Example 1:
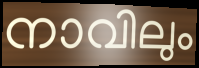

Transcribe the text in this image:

നാവിലും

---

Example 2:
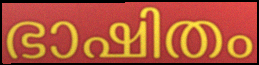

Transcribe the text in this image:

ഭാഷിതം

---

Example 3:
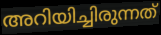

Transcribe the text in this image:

അറിയിച്ചിരുന്നത്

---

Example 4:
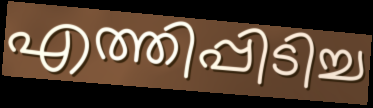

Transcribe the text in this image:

എത്തിപ്പിടിച്ച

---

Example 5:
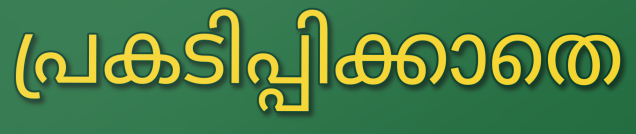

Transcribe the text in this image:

പ്രകടിപ്പിക്കാതെ